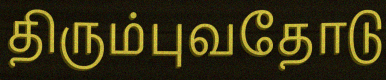
திரும்புவதோடு